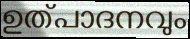
ഉത്പാദനവും